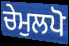
ਚੇਮੁਲਪੋ